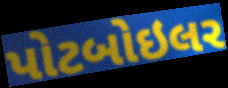
પોટબોઇલર